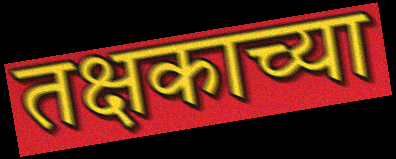
तक्षकाच्या